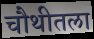
चौथीतला